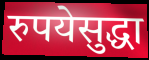
रुपयेसुद्धा